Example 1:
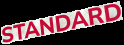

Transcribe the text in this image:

STANDARD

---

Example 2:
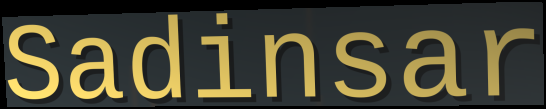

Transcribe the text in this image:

Sadinsar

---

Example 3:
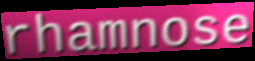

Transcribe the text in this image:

rhamnose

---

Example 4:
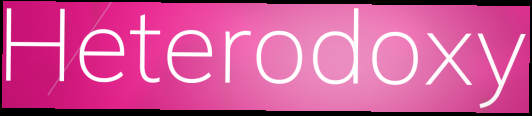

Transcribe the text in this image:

Heterodoxy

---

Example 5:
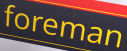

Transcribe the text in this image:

foreman